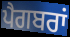
ਪੈਗਬਰਾਂ